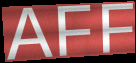
AFF